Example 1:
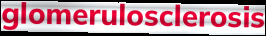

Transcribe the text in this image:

glomerulosclerosis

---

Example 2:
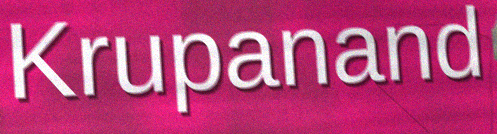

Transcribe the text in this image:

Krupanand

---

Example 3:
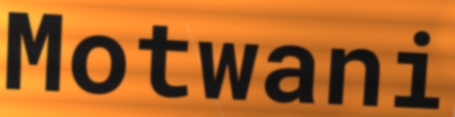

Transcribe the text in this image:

Motwani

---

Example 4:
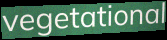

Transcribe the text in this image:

vegetational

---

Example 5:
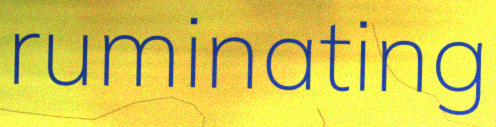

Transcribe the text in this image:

ruminating